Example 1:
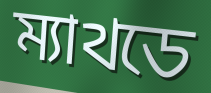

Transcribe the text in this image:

ম্যাথডে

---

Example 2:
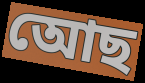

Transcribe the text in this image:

আেছ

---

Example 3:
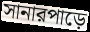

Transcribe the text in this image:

সানারপাড়ে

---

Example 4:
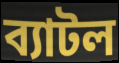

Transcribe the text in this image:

ব্যাটল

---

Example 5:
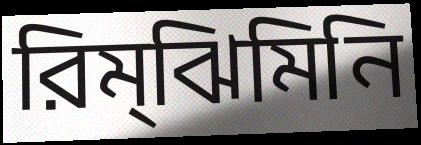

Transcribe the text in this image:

রিম্‌ঝিমিনি